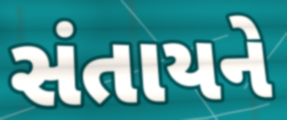
સંતાયને